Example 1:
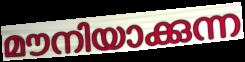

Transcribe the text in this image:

മൗനിയാക്കുന്ന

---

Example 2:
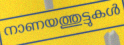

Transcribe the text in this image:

നാണയത്തുട്ടുകൾ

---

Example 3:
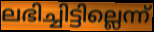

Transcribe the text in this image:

ലഭിച്ചിട്ടില്ലെന്ന്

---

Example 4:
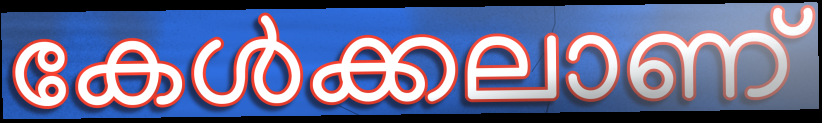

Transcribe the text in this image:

കേൾക്കലാണ്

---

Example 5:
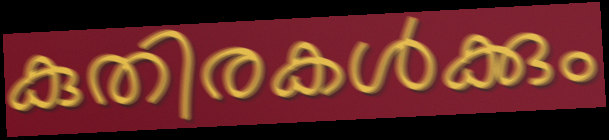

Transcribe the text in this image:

കുതിരകൾക്കും